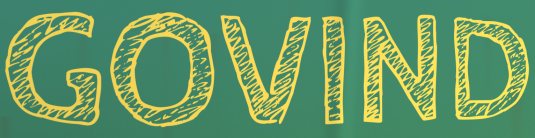
GOVIND